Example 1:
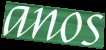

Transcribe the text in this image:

anos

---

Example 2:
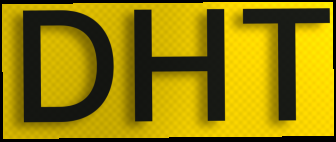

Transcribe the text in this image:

DHT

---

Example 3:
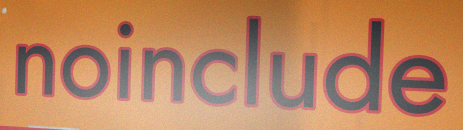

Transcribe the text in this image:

noinclude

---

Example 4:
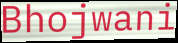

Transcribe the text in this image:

Bhojwani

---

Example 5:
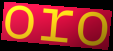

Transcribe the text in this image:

oro